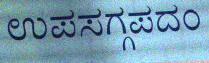
ಉಪಸಗ್ಗಪದಂ